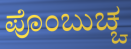
ಪೊಂಬುಚ್ಚ